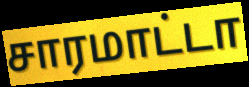
சாரமாட்டா